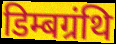
डिम्बग्रंथि